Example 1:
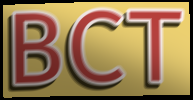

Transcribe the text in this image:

BCT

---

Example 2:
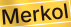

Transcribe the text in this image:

Merkol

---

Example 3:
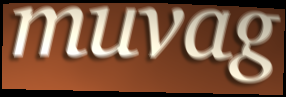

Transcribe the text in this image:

muvag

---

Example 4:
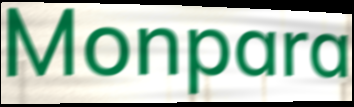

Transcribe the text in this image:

Monpara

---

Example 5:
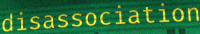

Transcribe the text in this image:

disassociation